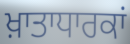
ਖ਼ਾਤਾਧਾਰਕਾਂ